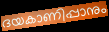
ദയകാണിപ്പാനും